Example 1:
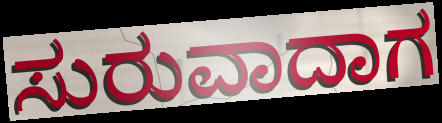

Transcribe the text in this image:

ಸುರುವಾದಾಗ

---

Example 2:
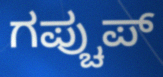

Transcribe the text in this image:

ಗಪ್ಚುಪ್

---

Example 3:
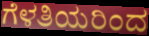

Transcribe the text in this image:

ಗೆಳತಿಯರಿಂದ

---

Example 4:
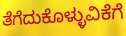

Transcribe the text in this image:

ತೆಗೆದುಕೊಳ್ಳುವಿಕೆಗೆ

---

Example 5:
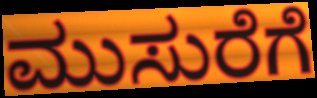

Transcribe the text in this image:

ಮುಸುರೆಗೆ